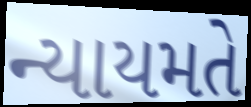
ન્યાયમતે